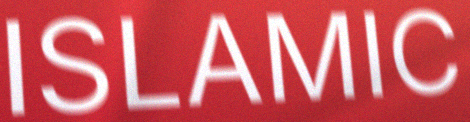
ISLAMIC